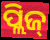
ପ୍ଲିଜ୍